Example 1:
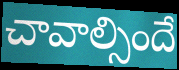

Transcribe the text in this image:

చావాల్సిందే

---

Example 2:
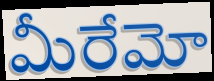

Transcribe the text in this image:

మీరేమో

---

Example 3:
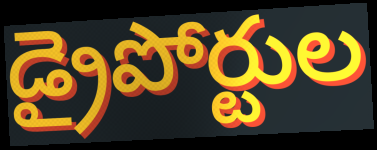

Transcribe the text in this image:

డ్రైపోర్టుల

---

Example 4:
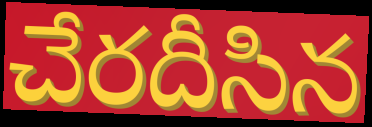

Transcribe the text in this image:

చేరదీసిన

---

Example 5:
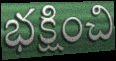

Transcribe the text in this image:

భక్షించి